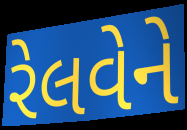
રેલવેને